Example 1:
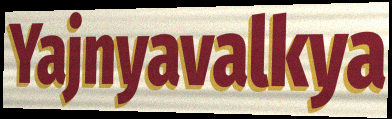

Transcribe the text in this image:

Yajnyavalkya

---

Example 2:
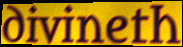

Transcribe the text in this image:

divineth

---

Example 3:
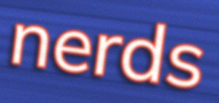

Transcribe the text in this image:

nerds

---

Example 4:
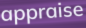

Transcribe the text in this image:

appraise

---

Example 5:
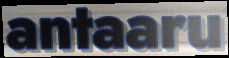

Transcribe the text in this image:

antaaru